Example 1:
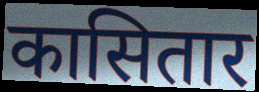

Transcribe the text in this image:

कासितार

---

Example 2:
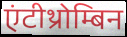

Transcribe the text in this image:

एंटीथ्रोम्बिन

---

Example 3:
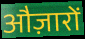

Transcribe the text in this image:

औज़ारों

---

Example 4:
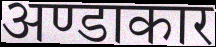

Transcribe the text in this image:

अण्डाकार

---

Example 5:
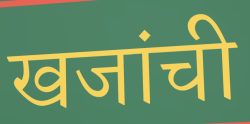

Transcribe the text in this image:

खजांची